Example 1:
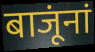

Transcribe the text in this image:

बाजूंनां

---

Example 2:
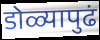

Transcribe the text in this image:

डोळ्यापुढं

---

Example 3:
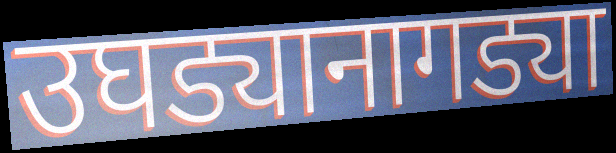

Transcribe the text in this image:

उघड्यानागड्या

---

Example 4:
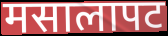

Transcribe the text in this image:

मसालापट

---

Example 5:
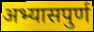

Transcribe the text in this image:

अभ्यासपुर्ण